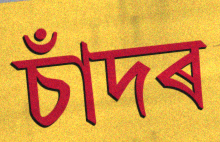
চাঁদৰ